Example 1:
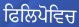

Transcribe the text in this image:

ਫਿਲਿਪੋਵਿਚ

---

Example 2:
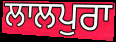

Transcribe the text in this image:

ਲਾਲਪੁਰਾ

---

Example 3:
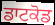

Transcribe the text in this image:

ਡਾਟਕੋਡ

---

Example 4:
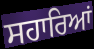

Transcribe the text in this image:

ਸਹਾਰਿਆਂ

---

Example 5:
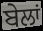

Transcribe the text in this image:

ਬੇਲਾਂ